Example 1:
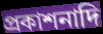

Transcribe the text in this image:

প্রকাশনাদি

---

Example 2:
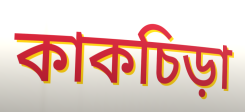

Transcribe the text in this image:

কাকচিড়া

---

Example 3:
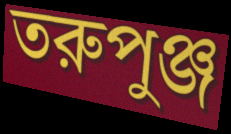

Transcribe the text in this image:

তরুপুঞ্জ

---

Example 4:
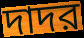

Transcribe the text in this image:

দাদর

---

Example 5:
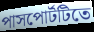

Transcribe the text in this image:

পাসপোর্টটিতে